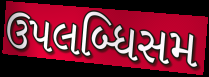
ઉપલબ્ધિસમ